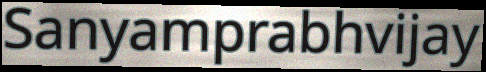
Sanyamprabhvijay